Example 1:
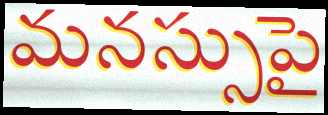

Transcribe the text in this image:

మనస్సుపై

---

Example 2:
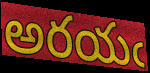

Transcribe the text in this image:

అరయఁ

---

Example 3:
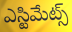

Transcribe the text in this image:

ఎస్టిమేట్స్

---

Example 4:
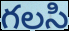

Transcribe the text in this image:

గలసి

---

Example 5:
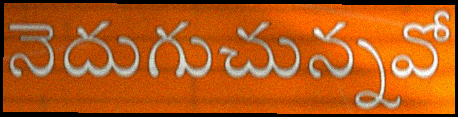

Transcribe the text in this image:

నెదుగుచున్నవో